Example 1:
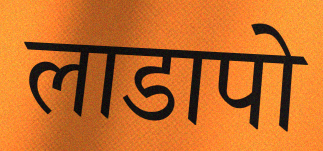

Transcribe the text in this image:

लाडापो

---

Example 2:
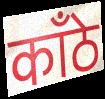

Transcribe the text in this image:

काँठे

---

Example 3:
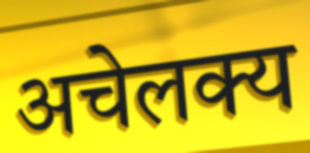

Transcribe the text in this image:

अचेलक्य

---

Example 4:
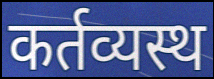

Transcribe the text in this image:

कर्तव्यस्थ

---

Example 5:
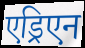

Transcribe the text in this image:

एड्रिएन